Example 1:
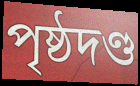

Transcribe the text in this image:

পৃষ্ঠদণ্ড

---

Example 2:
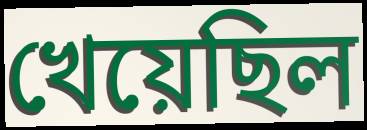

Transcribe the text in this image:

খেয়েছিল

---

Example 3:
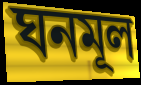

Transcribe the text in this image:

ঘনমূল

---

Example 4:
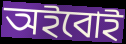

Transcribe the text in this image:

অইবোই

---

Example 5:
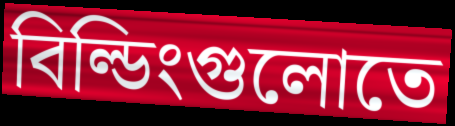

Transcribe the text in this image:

বিল্ডিংগুলোতে